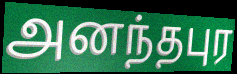
அனந்தபுர